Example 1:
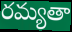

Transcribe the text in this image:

రమ్యతా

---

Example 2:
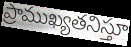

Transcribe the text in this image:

ప్రాముఖ్యతనిస్తూ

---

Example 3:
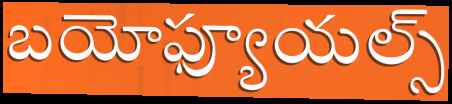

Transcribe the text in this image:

బయోఫ్యూయల్స్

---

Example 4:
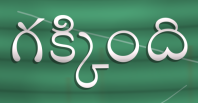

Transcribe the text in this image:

గక్కింది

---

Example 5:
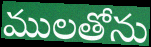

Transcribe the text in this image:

ములతోను